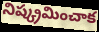
నిష్క్రమించాక